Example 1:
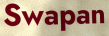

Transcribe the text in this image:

Swapan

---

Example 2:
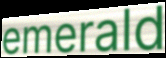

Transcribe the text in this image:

emerald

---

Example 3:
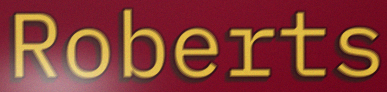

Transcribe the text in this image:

Roberts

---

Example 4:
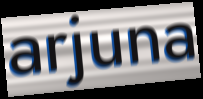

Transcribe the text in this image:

arjuna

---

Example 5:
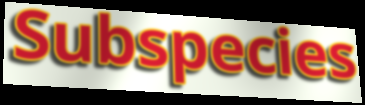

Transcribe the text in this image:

Subspecies